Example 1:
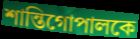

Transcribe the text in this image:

শান্তিগোপালকে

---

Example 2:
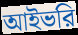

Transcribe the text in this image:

আইভরি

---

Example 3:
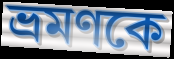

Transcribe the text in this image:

ভ্রমণকে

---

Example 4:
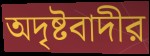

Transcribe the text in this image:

অদৃষ্টবাদীর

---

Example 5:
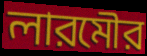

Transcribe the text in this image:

লারমৌর